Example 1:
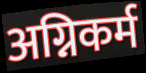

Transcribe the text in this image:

अग्निकर्म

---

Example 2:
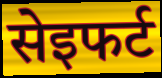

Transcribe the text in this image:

सेइफर्ट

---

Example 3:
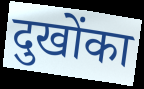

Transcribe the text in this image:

दुखोंका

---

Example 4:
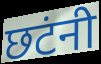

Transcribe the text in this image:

छटंनी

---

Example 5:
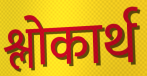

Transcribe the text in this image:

श्लोकार्थ